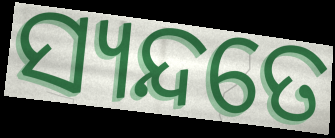
ସ୍ଯନ୍ଦତେ